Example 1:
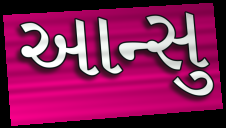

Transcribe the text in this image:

આન્સુ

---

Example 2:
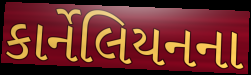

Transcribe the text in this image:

કાર્નેલિયનના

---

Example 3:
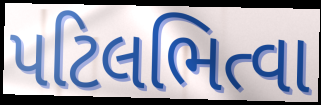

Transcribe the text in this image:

પટિલભિત્વા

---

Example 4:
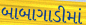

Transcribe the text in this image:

બાબાગાડીમાં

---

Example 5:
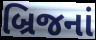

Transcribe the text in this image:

બ્રિજનાં